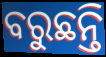
ବରୁଛନ୍ତି